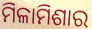
ମିଳାମିଶାର